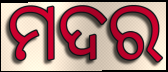
ମଦର